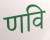
णवि